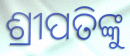
ଶ୍ରୀପତିଙ୍କୁ